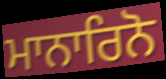
ਮਾਨਾਰਿਨੋ